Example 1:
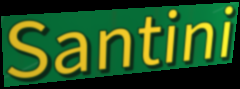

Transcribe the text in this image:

Santini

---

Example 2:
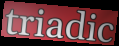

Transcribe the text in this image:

triadic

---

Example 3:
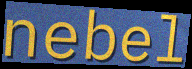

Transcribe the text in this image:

nebel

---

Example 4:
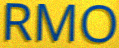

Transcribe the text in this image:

RMO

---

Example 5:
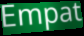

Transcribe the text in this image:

Empat